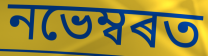
নভেম্বৰত